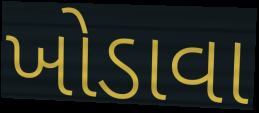
ખોડાવા